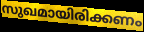
സുഖമായിരിക്കണം